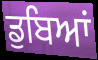
ਡੁਬਿਆਂ